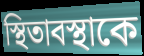
স্থিতাবস্থাকে